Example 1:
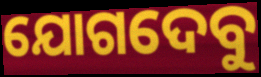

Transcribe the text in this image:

ଯୋଗଦେବୁ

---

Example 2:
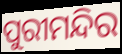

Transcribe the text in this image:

ପୁରୀମନ୍ଦିର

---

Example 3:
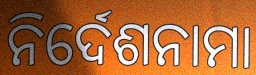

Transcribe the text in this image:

ନିର୍ଦେଶନାମା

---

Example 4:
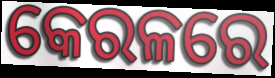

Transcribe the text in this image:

କେରଳରେ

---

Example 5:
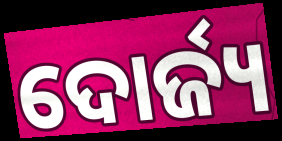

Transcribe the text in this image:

ଦୋର୍ଜ୍ୟ